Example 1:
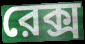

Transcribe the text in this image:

রেক্স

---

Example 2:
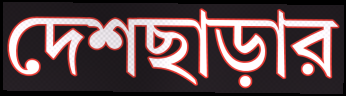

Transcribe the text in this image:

দেশছাড়ার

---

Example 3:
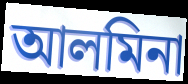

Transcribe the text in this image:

আলমিনা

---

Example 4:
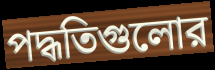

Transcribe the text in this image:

পদ্ধতিগুলোর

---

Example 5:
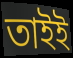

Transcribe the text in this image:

তাইই